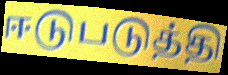
ஈடுபடுத்தி